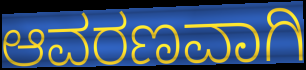
ಆವರಣವಾಗಿ